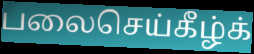
பலைசெய்கீழ்க்